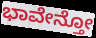
ಭಾವೇನ್ತೋ